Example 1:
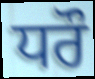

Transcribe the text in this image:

ਧਰੌ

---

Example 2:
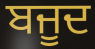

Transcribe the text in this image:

ਬਜੂਦ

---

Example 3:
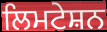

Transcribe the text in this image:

ਲਿਮਟੇਸ਼ਨ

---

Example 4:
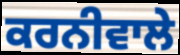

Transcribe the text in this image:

ਕਰਨੀਵਾਲੇ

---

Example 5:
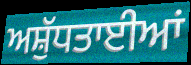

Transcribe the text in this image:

ਅਸ਼ੁੱਧਤਾਈਆਂ